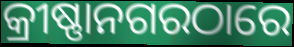
କ୍ରୀଷ୍ଣାନଗରଠାରେ